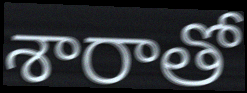
శారాతో